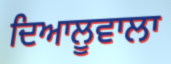
ਦਿਆਲੂਵਾਲਾ